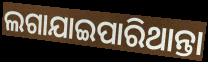
ଲଗାଯାଇପାରିଥାନ୍ତା